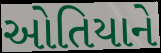
ઓતિયાને